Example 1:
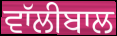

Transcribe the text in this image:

ਵਾੱਲੀਬਾਲ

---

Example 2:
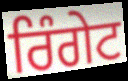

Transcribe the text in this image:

ਰਿੰਗੇਟ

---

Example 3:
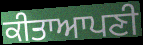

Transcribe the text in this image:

ਕੀਤਾਆਪਣੀ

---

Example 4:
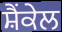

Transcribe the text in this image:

ਸ਼ੈਂਕੇਲ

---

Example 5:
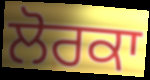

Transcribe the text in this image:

ਲੋਰਕਾ